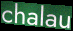
chalau